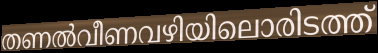
തണൽവീണവഴിയിലൊരിടത്ത്